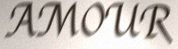
AMOUR